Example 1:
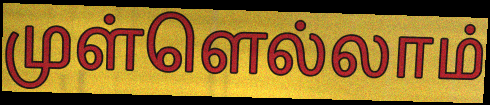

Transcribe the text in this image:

முள்ளெல்லாம்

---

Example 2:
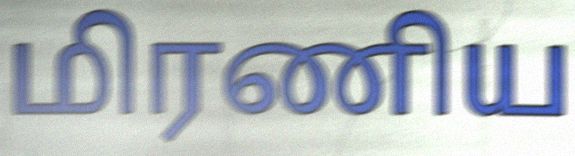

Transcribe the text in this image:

மிரணிய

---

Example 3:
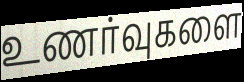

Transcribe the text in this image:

உணர்வுகளை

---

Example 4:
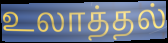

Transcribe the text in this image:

உலாத்தல்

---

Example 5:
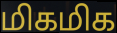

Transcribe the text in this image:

மிகமிக